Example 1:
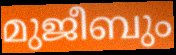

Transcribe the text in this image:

മുജീബും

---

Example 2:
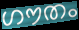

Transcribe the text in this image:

ഗൗതം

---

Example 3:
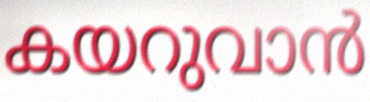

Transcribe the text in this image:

കയറുവാൻ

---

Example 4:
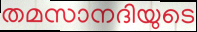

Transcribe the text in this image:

തമസാനദിയുടെ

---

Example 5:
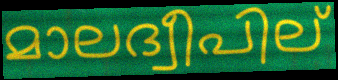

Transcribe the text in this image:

മാലദ്വീപില്